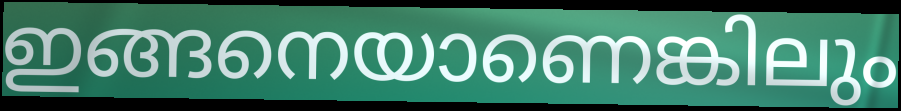
ഇങ്ങനെയാണെങ്കിലും